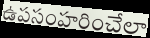
ఉపసంహరించేలా